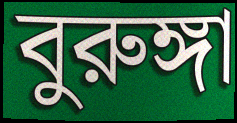
বুরুঙ্গা